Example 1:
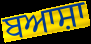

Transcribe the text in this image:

ਬਆਸ਼ਾ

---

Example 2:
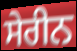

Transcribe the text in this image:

ਸੇਰੀਨ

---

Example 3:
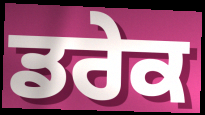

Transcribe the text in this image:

ਡਰੇਕ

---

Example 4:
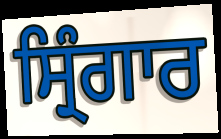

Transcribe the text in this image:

ਸ੍ਰਿੰਗਾਰ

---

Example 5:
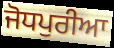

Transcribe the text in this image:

ਜੋਧਪੁਰੀਆ